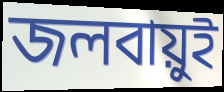
জলবায়ুই